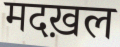
मदख़ल